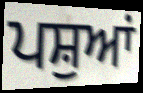
ਪਸ਼ੁਆਂ